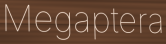
Megaptera